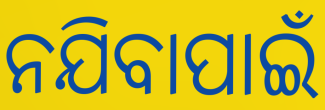
ନଯିବାପାଇଁ